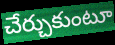
చేర్చుకుంటూ